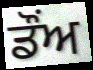
ਡੌਂਅ